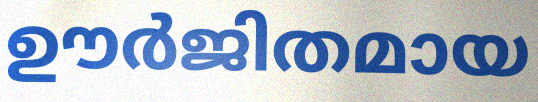
ഊർജിതമായ